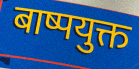
बाष्पयुक्त